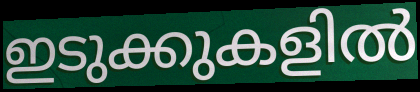
ഇടുക്കുകളിൽ